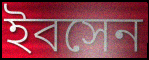
ইবসেন